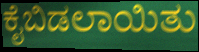
ಕೈಬಿಡಲಾಯಿತು